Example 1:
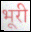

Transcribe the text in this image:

भूरी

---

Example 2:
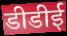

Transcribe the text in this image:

डीडीई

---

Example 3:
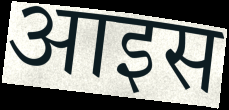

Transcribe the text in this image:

आइस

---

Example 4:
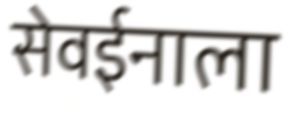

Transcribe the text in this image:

सेवईनाला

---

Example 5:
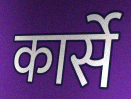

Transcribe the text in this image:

कार्से